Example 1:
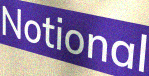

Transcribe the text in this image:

Notional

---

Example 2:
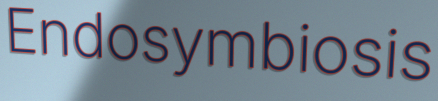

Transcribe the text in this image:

Endosymbiosis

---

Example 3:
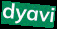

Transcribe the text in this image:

dyavi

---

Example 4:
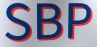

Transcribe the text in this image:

SBP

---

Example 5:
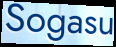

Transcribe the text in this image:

Sogasu